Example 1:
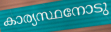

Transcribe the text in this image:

കാര്യസ്ഥനോടു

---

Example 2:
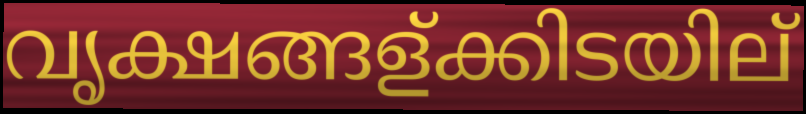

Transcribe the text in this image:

വൃക്ഷങ്ങള്ക്കിടയില്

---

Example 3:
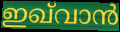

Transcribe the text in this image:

ഇഖ്‌വാൻ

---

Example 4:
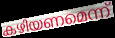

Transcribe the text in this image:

കഴിയണമെന്ന്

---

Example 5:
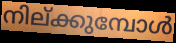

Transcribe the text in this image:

നില്ക്കുമ്പോൾ